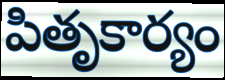
పితృకార్యం